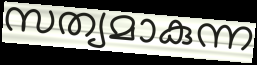
സത്യമാകുന്ന